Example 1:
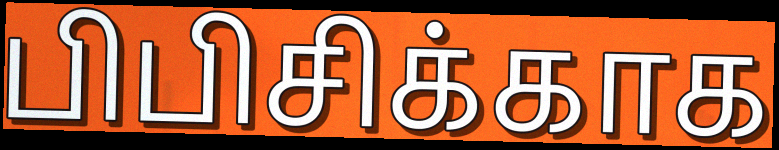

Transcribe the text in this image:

பிபிசிக்காக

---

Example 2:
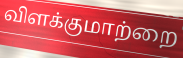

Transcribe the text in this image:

விளக்குமாற்றை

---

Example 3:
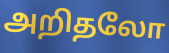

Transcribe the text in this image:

அறிதலோ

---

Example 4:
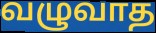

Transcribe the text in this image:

வழுவாத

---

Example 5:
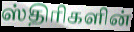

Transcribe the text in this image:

ஸ்திரிகளின்